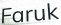
Faruk